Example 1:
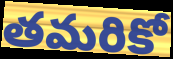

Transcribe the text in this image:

తమరికో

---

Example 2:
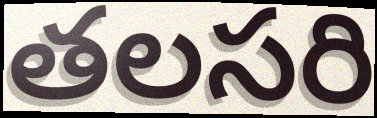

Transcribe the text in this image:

తలసరి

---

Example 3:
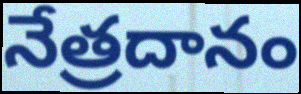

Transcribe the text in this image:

నేత్రదానం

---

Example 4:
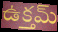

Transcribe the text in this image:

ఉక్తమ్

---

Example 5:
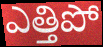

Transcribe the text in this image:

ఎత్తిపో